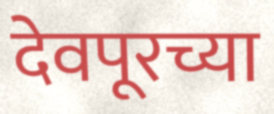
देवपूरच्या